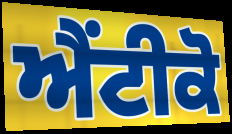
ਐਂਟੀਕੋ